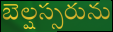
బెల్షస్సరును